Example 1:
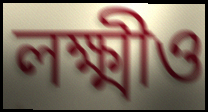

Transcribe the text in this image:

লক্ষ্মীও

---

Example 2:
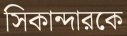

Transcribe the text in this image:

সিকান্দারকে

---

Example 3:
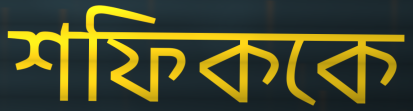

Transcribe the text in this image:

শফিককে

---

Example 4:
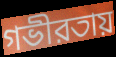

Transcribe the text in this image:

গভীরতায়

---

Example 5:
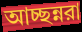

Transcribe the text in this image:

আচ্ছন্নরা